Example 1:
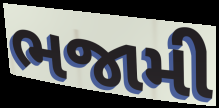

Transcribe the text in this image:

ભજામી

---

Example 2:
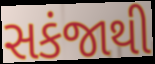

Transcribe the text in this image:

સકંજાથી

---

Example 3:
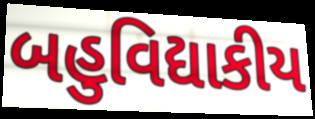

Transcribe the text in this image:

બહુવિદ્યાકીય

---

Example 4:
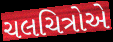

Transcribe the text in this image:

ચલચિત્રોએ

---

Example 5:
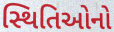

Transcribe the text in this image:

સ્થિતિઓનો